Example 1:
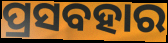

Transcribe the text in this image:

ପ୍ରସବହାର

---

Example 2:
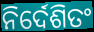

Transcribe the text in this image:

ନିର୍ଦେଶିତଂ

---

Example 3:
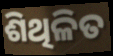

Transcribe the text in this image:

ଶିଥିଳିତ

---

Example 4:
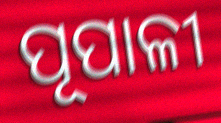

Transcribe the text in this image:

ପୂପାଳୀ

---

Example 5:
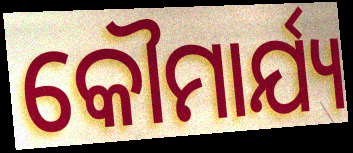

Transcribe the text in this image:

କୌମାର୍ଯ୍ୟ